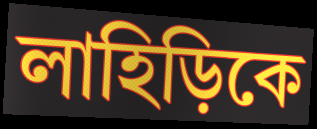
লাহিড়িকে